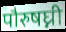
पौरुषघ्नी